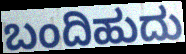
ಬಂದಿಹುದು